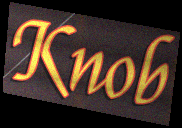
Knob